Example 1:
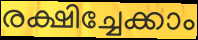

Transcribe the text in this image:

രക്ഷിച്ചേക്കാം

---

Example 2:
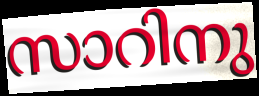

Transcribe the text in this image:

സാറിനു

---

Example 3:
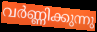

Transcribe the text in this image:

വർണ്ണിക്കുന്നു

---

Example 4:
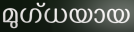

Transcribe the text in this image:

മുഗ്ധയായ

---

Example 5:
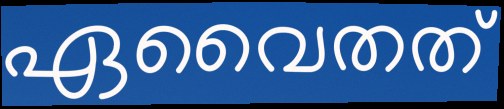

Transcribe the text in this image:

ഏവൈതത്